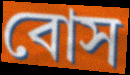
বোস